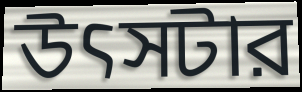
উৎসটার